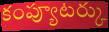
కంప్యూటర్కు